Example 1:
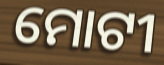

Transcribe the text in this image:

ମୋଟୀ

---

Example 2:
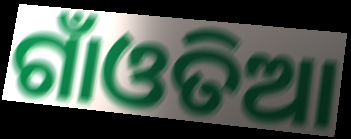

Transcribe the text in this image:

ଗାଁଓତିଆ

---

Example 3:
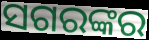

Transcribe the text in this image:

ସଗରଙ୍କର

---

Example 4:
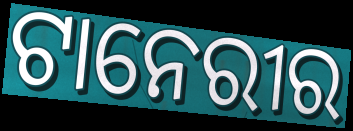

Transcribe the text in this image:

ଟାନେରୀର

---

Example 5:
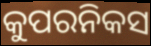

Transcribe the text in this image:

କୁପରନିକସ